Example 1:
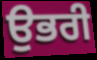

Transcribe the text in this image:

ਉਭਰੀ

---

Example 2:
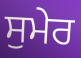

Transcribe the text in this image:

ਸੁਮੇਰ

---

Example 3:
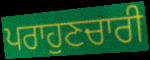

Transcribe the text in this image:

ਪਰਾਹੁਣਚਾਰੀ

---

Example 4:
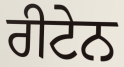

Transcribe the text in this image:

ਰੀਟੇਨ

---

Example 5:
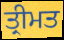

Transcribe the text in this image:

ਤ੍ਰੀਮਤ